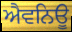
ਐਵਨਿਊ